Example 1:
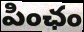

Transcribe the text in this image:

పింఛం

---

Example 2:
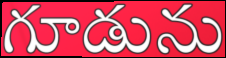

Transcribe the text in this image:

గూడును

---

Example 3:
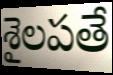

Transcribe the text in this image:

శైలపతే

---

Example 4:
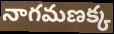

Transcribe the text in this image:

నాగమణక్క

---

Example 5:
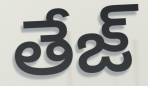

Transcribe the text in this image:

తేజ్